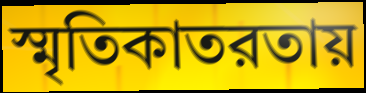
স্মৃতিকাতরতায়